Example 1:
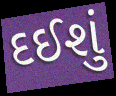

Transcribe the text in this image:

દઈશું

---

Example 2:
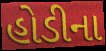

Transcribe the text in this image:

હોડીના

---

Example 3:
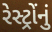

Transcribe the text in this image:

રેસ્ટ્રોંનું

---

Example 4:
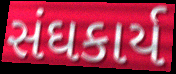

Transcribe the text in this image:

સંઘકાર્ય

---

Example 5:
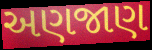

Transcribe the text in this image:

અણજાણ